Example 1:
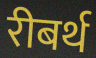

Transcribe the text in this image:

रीबर्थ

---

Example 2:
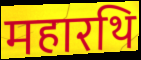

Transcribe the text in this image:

महारथि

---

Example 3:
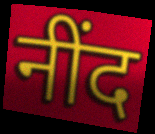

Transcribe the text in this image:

नींद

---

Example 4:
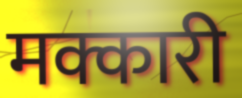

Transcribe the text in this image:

मक्कारी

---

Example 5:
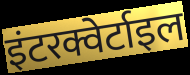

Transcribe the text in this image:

इंटरक्वेर्टाइल